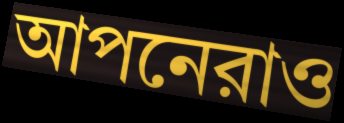
আপনেরাও